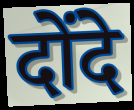
दोंदे